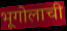
भूगोलाची